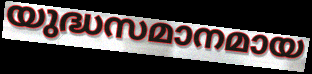
യുദ്ധസമാനമായ